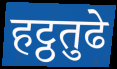
हट्ठतुढे